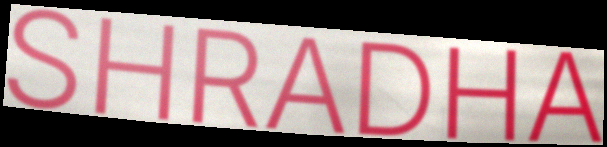
SHRADHA